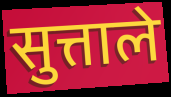
सुत्ताले